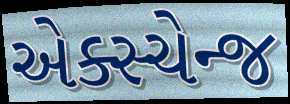
એક્સ્ચેન્જ